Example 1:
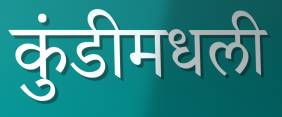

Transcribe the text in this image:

कुंडीमधली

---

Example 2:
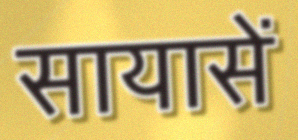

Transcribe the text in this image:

सायासें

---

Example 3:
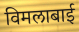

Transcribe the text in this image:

विमलाबाई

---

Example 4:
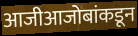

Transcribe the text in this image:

आजीआजोबांकडून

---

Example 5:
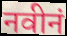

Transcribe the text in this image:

नवीनं